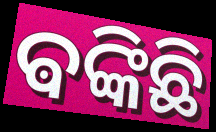
ଵଙ୍କିଛି